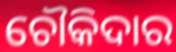
ଚୌକିଦାର